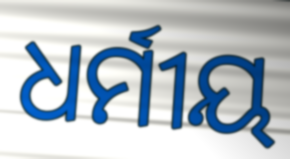
ଧର୍ମୀୟ